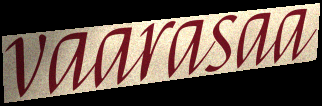
vaarasaa